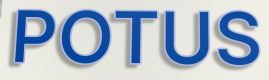
POTUS